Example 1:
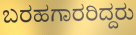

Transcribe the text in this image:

ಬರಹಗಾರರಿದ್ದರು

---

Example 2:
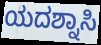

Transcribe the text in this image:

ಯದಶ್ನಾಸಿ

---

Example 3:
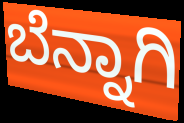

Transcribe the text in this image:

ಬೆನ್ನಾಗಿ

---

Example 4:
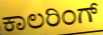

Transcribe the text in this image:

ಕಾಲರಿಂಗ್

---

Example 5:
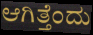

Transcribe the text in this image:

ಆಗಿತ್ತೆಂದು